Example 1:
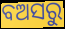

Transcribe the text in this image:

ବଅସରୁ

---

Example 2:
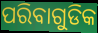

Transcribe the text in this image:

ପରିବାଗୁଡିକ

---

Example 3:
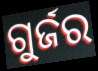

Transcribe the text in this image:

ଗୁର୍ଜର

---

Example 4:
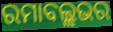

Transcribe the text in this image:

ରମାବଲ୍ଲଭର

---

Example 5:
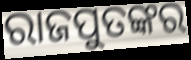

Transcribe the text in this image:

ରାଜପୁତଙ୍କର